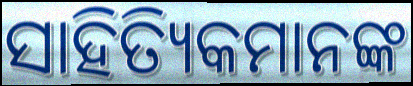
ସାହିତ୍ୟିକମାନଙ୍କ